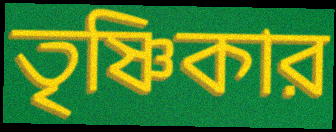
তৃষ্ণিকার